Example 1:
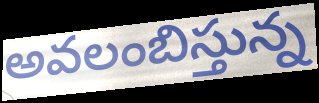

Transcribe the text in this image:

అవలంబిస్తున్న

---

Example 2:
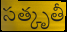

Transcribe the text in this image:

సత్కృతీ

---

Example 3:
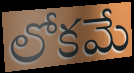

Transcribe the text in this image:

లోకమే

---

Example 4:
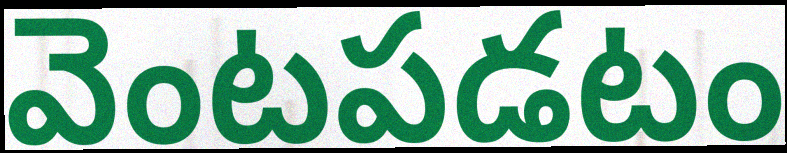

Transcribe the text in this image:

వెంటపడటం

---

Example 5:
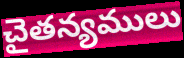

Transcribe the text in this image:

చైతన్యములు